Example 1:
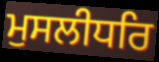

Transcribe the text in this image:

ਮੁਸਲੀਧਰਿ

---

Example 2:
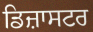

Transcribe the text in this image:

ਡਿਜ਼ਾਸਟਰ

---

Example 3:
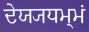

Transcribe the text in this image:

ਦੇਯ੍ਯਧਮ੍ਮਂ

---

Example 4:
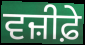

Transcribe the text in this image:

ਵਜ਼ੀਫ਼ੇ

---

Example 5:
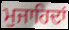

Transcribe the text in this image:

ਮੁਜਾਹਿਦਾਂ